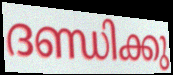
ദണ്ഡിക്കു